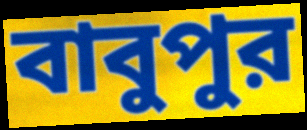
বাবুপুর